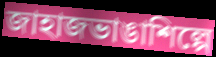
জাহাজভাঙাশিল্পে